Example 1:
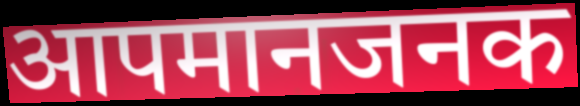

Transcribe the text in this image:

आपमानजनक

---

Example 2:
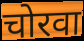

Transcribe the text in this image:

चोरवा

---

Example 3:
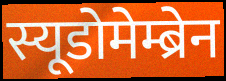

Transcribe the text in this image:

स्यूडोमेम्ब्रेन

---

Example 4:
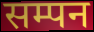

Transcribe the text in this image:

सम्पन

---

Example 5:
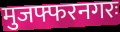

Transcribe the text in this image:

मुजफ्फरनगरः